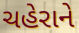
ચહેરાને